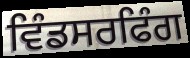
ਵਿੰਡਸਰਫਿੰਗ